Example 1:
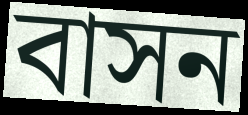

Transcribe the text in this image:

বাসন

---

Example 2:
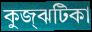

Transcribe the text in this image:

কুজ্‌ঝটিকা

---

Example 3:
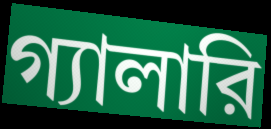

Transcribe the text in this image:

গ্যালারি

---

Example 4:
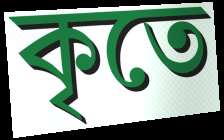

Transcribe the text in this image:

কৃতে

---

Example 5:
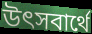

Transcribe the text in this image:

উৎসবার্থে